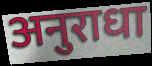
अनुराधा